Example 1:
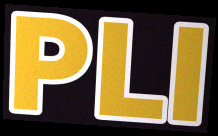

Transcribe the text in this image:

PLI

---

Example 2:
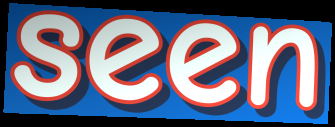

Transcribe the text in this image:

seen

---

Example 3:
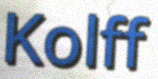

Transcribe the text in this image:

Kolff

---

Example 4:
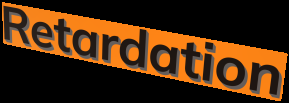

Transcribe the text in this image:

Retardation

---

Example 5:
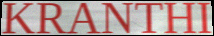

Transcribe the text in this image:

KRANTHI